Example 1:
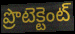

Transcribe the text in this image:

ప్రొటెక్టెంట్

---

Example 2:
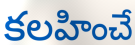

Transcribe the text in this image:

కలహించే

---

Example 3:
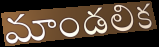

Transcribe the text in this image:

మాండలిక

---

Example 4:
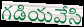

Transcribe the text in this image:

గడియవేసి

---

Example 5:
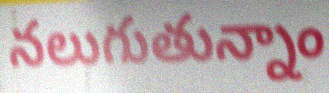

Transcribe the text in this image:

నలుగుతున్నాం